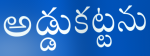
అడ్డుకట్టను